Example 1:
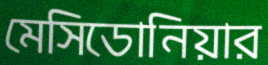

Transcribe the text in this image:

মেসিডোনিয়ার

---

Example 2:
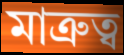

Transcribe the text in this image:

মাত্রুত্ব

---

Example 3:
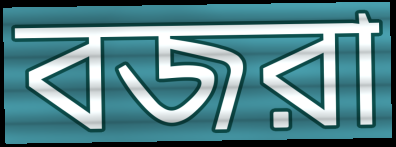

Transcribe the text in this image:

বজরা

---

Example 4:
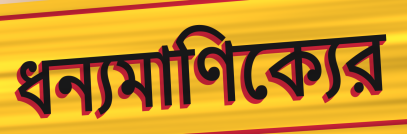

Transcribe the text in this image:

ধন্যমাণিক্যের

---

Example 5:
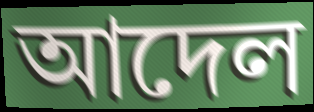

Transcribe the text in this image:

আদেল